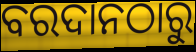
ବରଦାନଠାରୁ